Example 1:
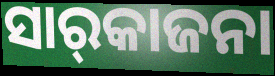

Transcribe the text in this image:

ସାର୍‌କାଜନା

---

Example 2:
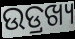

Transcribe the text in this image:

ଉଡ୍ରଖ୍ୟ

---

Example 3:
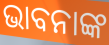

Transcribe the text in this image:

ଭାବନାଙ୍କ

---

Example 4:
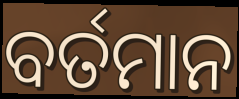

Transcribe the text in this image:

ବର୍ତମାନ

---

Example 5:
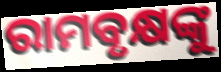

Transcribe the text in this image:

ରାମବୃକ୍ଷଙ୍କୁ